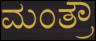
ಮಂತ್ರೌ